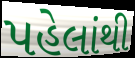
પહેલાંથી